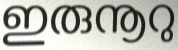
ഇരുനൂറു